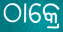
ଠାକ୍ରେ